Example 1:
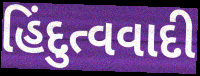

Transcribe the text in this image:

હિંદુત્વવાદી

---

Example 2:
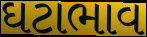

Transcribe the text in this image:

ઘટાભાવ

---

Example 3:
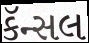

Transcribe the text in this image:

કૅન્સલ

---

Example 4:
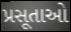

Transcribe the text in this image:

પ્રસૂતાઓ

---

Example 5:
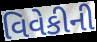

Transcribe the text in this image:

વિવેકીની